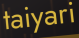
taiyari